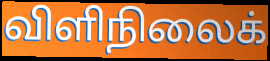
விளிநிலைக்